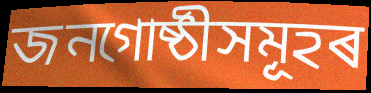
জনগোষ্ঠীসমূহৰ